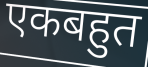
एकबहुत